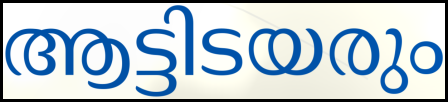
ആട്ടിടയരും